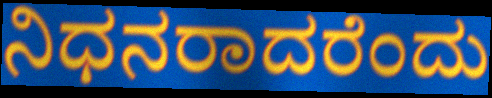
ನಿಧನರಾದರೆಂದು